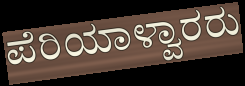
ಪೆರಿಯಾಳ್ವಾರರು